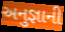
અનુજ્ઞાની